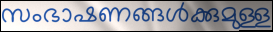
സംഭാഷണങ്ങൾക്കുമുള്ള